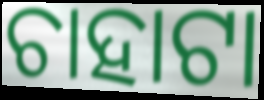
ଚାହାଟା